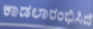
ಕಾಡಲಾರಂಭಿಸಿದೆ